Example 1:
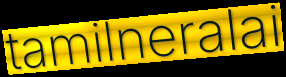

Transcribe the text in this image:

tamilneralai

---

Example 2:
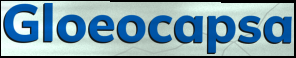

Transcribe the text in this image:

Gloeocapsa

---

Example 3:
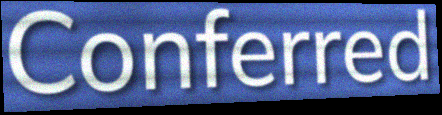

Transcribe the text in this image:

Conferred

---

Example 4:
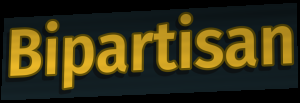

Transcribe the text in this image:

Bipartisan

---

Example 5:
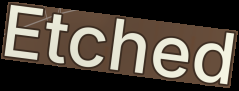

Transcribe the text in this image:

Etched